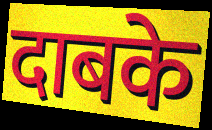
दाबके